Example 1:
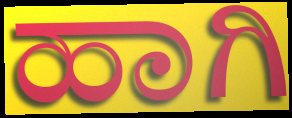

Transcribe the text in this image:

ಹಾಗಿ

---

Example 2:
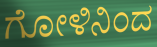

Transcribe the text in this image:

ಗೋಳಿನಿಂದ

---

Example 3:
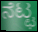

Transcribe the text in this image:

ನೆಟ್ಟ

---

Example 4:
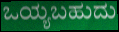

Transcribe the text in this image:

ಒಯ್ಯಬಹುದು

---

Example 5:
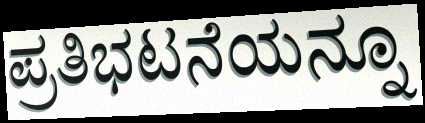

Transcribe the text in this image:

ಪ್ರತಿಭಟನೆಯನ್ನೂ